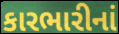
કારભારીનાં